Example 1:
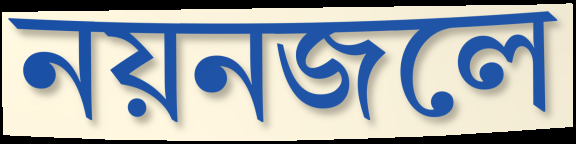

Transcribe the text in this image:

নয়নজলে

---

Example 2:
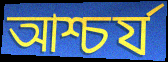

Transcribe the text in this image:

আশ্চর্য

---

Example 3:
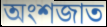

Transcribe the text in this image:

অংশজাত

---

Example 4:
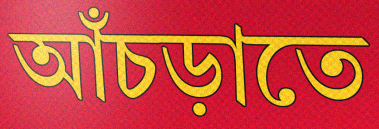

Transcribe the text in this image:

আঁচড়াতে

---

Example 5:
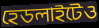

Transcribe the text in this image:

হেডলাইটেও